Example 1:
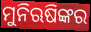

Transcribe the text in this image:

ମୁନିଋଷିଙ୍କର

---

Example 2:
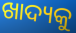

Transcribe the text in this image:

ଖାଦ୍ୟକୁ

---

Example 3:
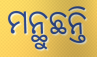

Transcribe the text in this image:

ମନ୍ଥୁଛନ୍ତି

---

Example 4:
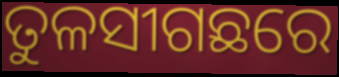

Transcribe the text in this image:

ତୁଳସୀଗଛରେ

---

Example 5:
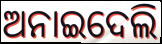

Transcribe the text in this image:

ଅନାଇଦେଲି